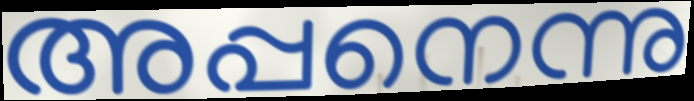
അപ്പനെന്നു